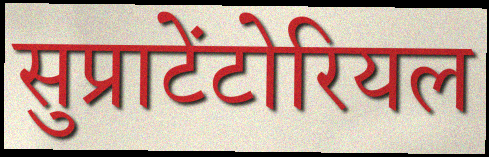
सुप्राटेंटोरियल